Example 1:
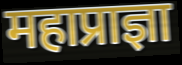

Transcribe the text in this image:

महाप्राज्ञा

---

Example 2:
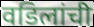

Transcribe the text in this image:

वडिलांची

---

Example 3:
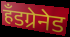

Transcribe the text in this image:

हॅंडग्रेनेड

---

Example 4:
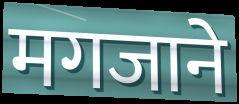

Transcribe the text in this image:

मगजाने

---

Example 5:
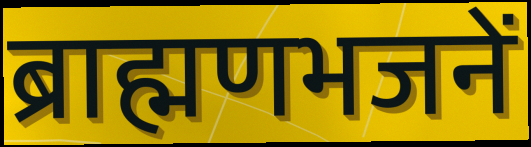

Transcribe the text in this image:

ब्राह्मणभजनें